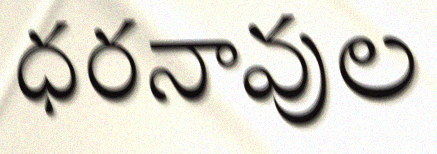
ధరనావుల